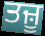
ਤਜ਼ੂ